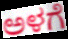
ಅಳಗೆ